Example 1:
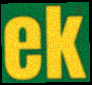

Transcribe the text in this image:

ek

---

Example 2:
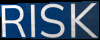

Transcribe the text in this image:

RISK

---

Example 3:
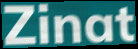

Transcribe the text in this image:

Zinat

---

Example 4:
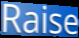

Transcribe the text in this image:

Raise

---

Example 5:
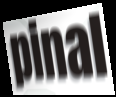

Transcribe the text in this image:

pinal